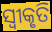
ସ୍ୱୀକୃତି